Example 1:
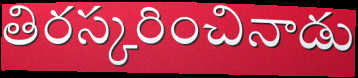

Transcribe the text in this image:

తిరస్కరించినాడు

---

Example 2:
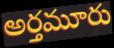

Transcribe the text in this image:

అర్తమూరు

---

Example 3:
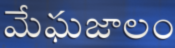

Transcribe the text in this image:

మేఘజాలం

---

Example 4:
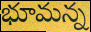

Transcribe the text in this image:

భూమన్న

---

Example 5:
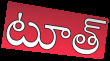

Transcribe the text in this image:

టూత్